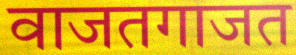
वाजतगाजत